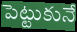
పెట్టుకునే